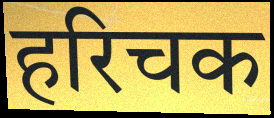
हरिचक